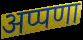
अप्पणा